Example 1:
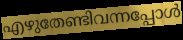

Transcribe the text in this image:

എഴുതേണ്ടിവന്നപ്പോൾ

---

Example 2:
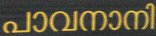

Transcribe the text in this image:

പാവനാനി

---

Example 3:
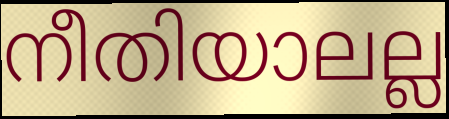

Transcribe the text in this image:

നീതിയാലല്ല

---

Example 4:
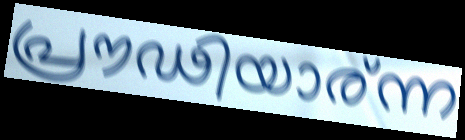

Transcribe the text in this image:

പ്രൗഢിയാര്ന്ന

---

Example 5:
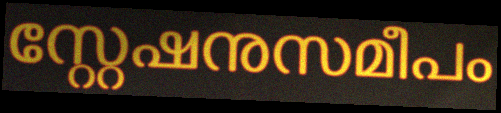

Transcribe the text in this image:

സ്റ്റേഷനുസമീപം